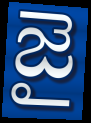
జై